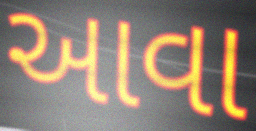
આવા